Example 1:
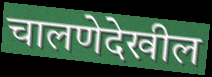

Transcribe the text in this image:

चालणेदेखील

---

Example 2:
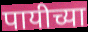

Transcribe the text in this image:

पायीच्या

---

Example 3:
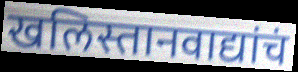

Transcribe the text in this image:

खलिस्तानवाद्यांचं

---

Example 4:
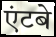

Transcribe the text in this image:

एंटबे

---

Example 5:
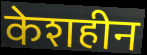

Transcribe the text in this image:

केशहीन